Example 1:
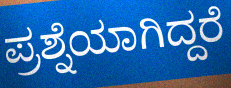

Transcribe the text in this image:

ಪ್ರಶ್ನೆಯಾಗಿದ್ದರೆ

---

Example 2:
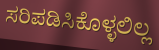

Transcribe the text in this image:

ಸರಿಪಡಿಸಿಕೊಳ್ಳಲಿಲ್ಲ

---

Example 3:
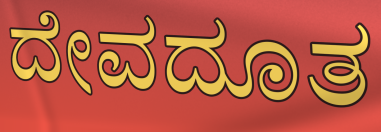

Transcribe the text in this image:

ದೇವದೂತ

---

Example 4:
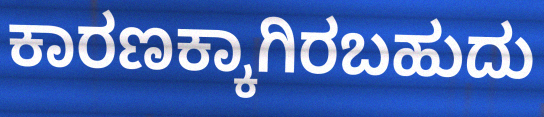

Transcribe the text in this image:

ಕಾರಣಕ್ಕಾಗಿರಬಹುದು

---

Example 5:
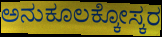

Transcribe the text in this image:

ಅನುಕೂಲಕ್ಕೋಸ್ಕರ